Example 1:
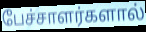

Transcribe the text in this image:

பேச்சாளர்களால்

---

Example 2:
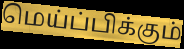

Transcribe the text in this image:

மெய்ப்பிக்கும்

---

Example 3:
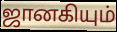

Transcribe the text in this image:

ஜானகியும்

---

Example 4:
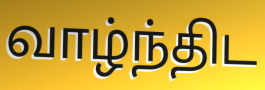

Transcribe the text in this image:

வாழ்ந்திட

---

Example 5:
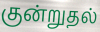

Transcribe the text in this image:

குன்றுதல்